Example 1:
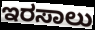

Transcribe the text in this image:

ಇರಸಾಲು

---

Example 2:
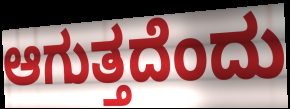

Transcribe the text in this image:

ಆಗುತ್ತದೆಂದು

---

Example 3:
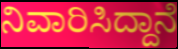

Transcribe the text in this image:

ನಿವಾರಿಸಿದ್ದಾನೆ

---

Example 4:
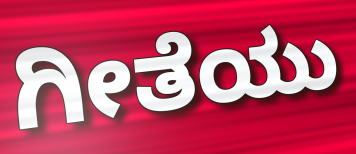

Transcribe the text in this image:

ಗೀತೆಯು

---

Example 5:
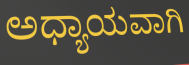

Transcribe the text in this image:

ಅಧ್ಯಾಯವಾಗಿ